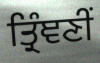
ਤ੍ਰਿੰਞਣੀਂ